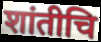
शांतीचि